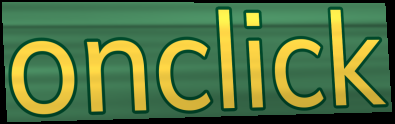
onclick